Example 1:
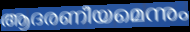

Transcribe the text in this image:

ആദരണീയമെന്നും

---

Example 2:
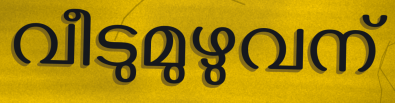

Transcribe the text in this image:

വീടുമുഴുവന്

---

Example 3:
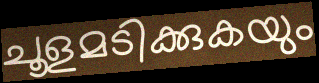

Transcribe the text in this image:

ചൂളമടിക്കുകയും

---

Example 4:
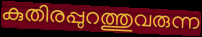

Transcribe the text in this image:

കുതിരപ്പുറത്തുവരുന്ന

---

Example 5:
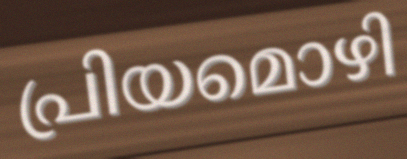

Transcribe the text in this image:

പ്രിയമൊഴി